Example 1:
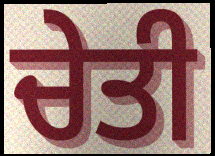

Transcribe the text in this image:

ਚੇਤੀ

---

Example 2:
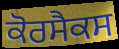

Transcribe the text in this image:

ਕੋਰਸੈਕਸ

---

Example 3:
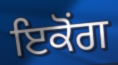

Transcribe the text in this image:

ਇਕੋਂਗ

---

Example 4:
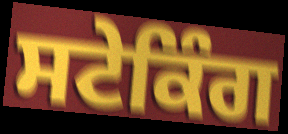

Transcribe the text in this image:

ਸਟੇਕਿੰਗ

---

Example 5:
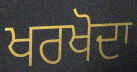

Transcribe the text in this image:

ਖਰਖੋਦਾ